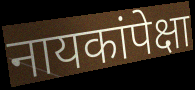
नायकांपेक्षा